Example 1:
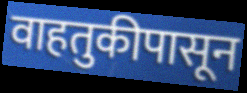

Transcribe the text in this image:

वाहतुकीपासून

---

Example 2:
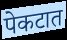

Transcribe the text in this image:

पेकटात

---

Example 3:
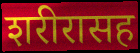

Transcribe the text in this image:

शरीरासह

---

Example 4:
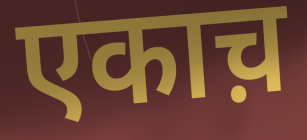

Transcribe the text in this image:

एकाच़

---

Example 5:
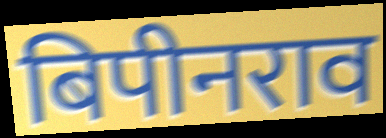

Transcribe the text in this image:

बिपीनराव